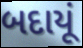
બદાયૂં